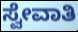
ಸ್ವೇವಾತಿ